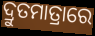
ଦ୍ରୁତମାତ୍ରାରେ